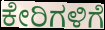
ಕೇರಿಗಳಿಗೆ